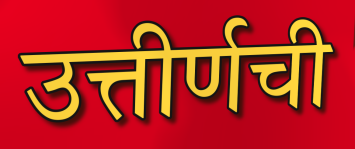
उत्तीर्णची